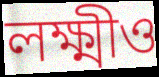
লক্ষ্মীও